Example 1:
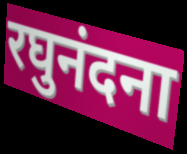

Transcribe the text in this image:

रघुनंदना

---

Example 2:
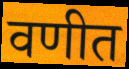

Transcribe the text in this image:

वणीत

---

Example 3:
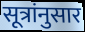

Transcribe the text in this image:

सूत्रांनुसार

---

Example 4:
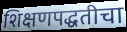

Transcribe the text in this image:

शिक्षणपद्धतीचा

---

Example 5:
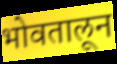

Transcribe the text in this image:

भोवतालून